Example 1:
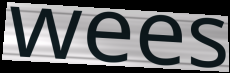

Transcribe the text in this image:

wees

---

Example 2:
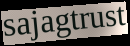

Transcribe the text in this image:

sajagtrust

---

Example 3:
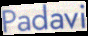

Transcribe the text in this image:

Padavi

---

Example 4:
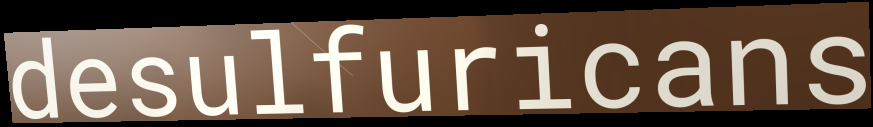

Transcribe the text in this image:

desulfuricans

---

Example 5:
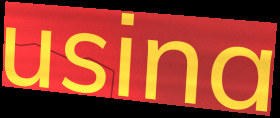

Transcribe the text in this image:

usina